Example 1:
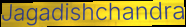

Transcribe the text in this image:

Jagadishchandra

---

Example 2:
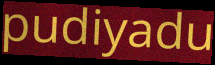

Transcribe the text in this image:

pudiyadu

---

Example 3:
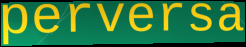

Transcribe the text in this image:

perversa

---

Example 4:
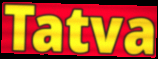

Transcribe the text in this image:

Tatva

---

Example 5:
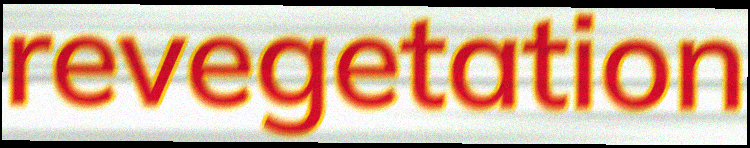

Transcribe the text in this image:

revegetation